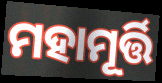
ମହାମୂର୍ତ୍ତି